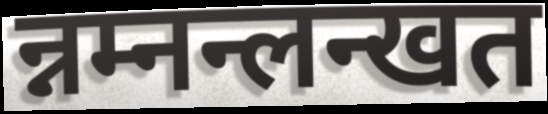
न्नम्नन्लन्खत